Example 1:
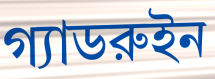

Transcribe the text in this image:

গ্যাডরুইন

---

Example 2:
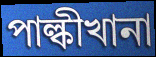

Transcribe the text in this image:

পাল্কীখানা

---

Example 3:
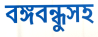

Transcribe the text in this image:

বঙ্গবন্ধুসহ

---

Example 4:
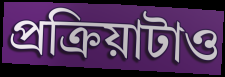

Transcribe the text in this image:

প্রক্রিয়াটাও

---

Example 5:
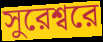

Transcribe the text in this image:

সুরেশ্বরে